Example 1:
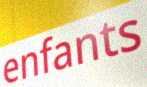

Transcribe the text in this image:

enfants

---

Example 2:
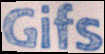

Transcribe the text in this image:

Gifs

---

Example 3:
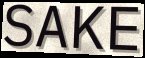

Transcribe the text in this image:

SAKE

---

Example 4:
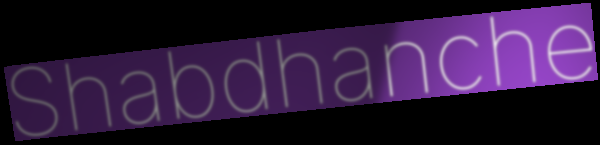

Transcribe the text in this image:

Shabdhanche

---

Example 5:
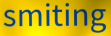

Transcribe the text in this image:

smiting